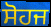
ਸੋਹਜ